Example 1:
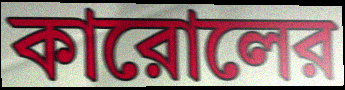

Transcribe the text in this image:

কারোলের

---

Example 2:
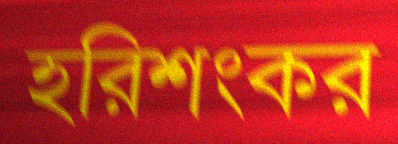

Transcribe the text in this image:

হরিশংকর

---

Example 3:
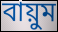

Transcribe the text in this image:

বায়ুম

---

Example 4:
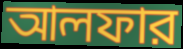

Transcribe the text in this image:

আলফার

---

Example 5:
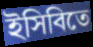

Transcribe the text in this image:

ইসিবিতে